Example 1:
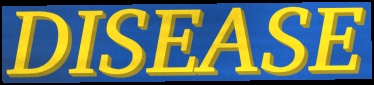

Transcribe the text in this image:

DISEASE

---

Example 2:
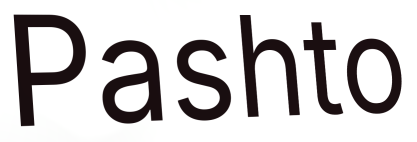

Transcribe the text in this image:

Pashto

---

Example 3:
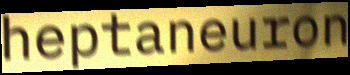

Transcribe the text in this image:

heptaneuron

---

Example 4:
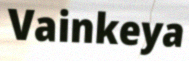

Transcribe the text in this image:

Vainkeya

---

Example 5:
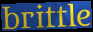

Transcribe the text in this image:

brittle